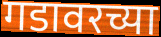
गडावरच्या